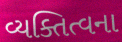
વ્યક્તિત્વના